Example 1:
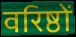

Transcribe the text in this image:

वरिष्ठों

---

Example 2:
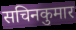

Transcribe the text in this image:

सचिनकुमार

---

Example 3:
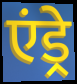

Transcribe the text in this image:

एंड्रे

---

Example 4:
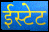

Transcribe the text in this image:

ईस्टेट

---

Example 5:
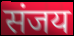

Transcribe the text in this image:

संजय